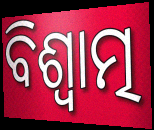
ବିଶ୍ୱାତ୍ମ